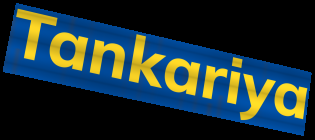
Tankariya